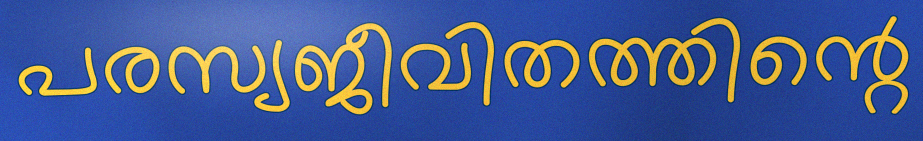
പരസ്യജീവിതത്തിന്റെ